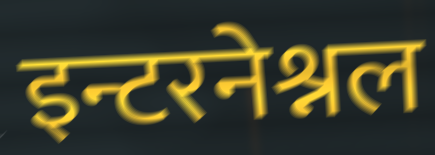
इन्टरनेश्नल